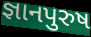
જ્ઞાનપુરુષ